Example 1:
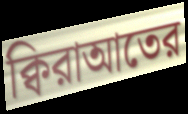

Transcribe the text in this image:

ক্বিরাআতের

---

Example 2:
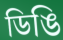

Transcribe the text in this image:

ডিঙি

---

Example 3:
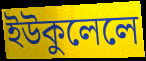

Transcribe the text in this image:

ইউকুলেলে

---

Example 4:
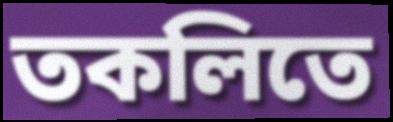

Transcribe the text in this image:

তকলিতে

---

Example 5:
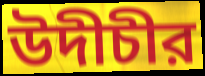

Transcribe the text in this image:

উদীচীর